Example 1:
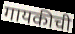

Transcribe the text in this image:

गायकीची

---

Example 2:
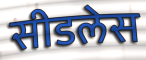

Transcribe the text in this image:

सीडलेस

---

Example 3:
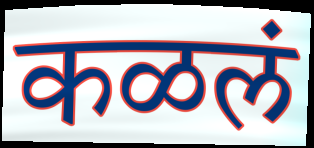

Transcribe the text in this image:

कळलं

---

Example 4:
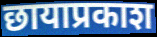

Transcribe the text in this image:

छायाप्रकाश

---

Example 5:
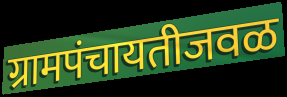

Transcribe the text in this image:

ग्रामपंचायतीजवळ